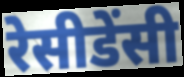
रेसीडेंसी